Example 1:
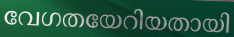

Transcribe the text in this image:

വേഗതയേറിയതായി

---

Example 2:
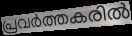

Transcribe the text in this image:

പ്രവർത്തകരിൽ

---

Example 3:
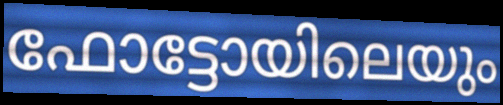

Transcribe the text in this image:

ഫോട്ടോയിലെയും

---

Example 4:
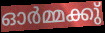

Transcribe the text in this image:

ഓർമ്മക്കു്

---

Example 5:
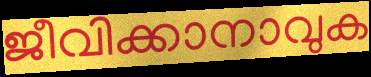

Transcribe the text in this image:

ജീവിക്കാനാവുക